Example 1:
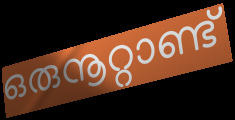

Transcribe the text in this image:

ഒരുനൂറ്റാണ്ട്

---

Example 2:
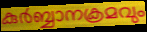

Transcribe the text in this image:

കുർബ്ബാനക്രമവും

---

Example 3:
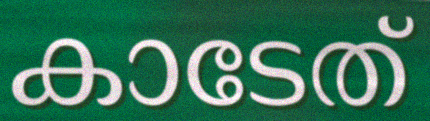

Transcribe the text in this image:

കാടേത്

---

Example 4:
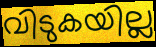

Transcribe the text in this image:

വിടുകയില്ല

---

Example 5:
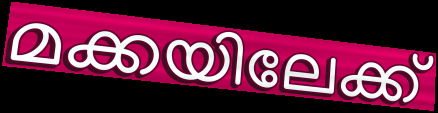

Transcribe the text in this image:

മക്കയിലേക്ക്